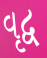
વૃદ્વ